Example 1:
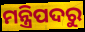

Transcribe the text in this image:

ମନ୍ତ୍ରିପଦରୁ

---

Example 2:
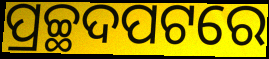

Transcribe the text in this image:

ପ୍ରଚ୍ଛଦପଟରେ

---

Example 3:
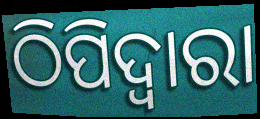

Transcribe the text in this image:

ଠିପିଦ୍ଵାରା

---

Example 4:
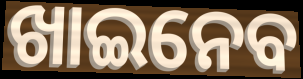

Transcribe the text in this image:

ଖାଇନେବ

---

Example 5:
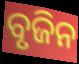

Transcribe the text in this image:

ବୃଜିନ